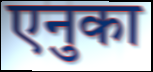
एनुका